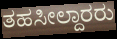
ತಹಸೀಲ್ದಾರರು